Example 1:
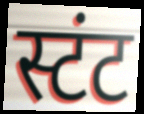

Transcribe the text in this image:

स्टंट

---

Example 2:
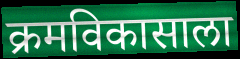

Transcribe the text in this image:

क्रमविकासाला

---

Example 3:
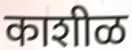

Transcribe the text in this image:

काशीळ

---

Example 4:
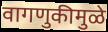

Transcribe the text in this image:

वागणुकीमुळे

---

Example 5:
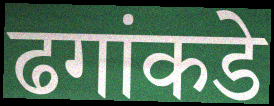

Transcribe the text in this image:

ढगांकडे